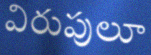
విరుపులూ